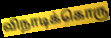
விநாடிக்கொரு